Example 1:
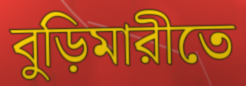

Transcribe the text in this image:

বুড়িমারীতে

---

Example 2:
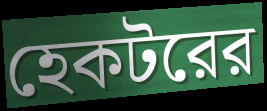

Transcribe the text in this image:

হেকটরের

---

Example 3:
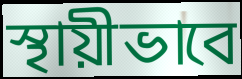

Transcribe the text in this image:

স্থায়ীভাবে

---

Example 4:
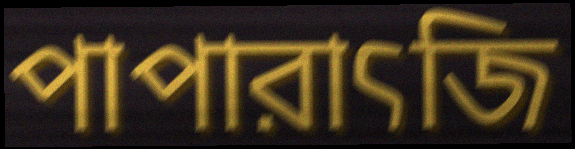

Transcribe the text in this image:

পাপারাৎজি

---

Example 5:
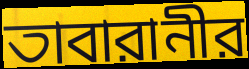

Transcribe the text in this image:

তাবারানীর